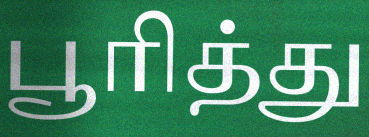
பூரித்து